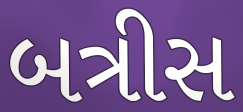
બત્રીસ